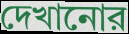
দেখানোর